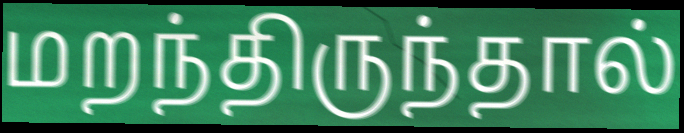
மறந்திருந்தால்